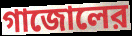
গাজোলের